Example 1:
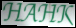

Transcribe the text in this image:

HAHK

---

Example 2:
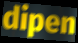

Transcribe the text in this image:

dipen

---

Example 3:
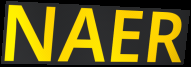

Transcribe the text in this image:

NAER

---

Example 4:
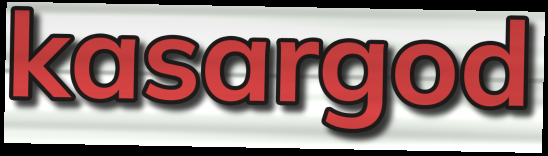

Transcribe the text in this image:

kasargod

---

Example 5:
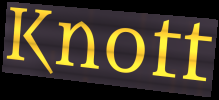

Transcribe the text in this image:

Knott